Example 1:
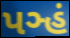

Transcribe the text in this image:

પઞ્હં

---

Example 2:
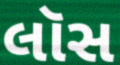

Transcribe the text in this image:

લૉસ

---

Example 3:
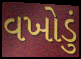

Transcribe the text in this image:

વખોડું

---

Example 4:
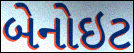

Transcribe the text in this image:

બેનોઇટ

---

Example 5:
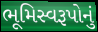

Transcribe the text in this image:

ભૂમિસ્વરૂપોનું